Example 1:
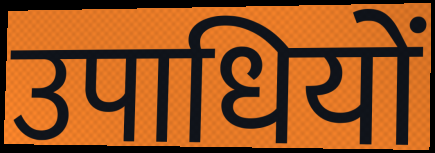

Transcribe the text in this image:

उपाधियों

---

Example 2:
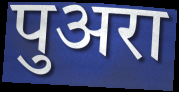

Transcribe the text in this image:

पुअरा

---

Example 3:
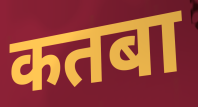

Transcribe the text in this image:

कतबा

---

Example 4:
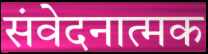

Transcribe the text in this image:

संवेदनात्मक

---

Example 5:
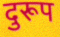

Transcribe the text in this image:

दुरूप